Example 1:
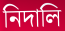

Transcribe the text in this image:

নিদালি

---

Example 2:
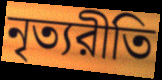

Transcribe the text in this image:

নৃত্যরীতি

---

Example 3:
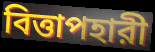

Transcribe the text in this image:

বিত্তাপহারী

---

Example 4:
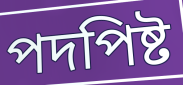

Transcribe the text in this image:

পদপিষ্ট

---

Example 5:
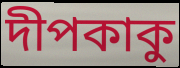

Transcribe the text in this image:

দীপকাকু